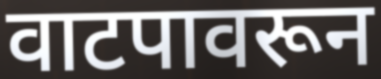
वाटपावरून